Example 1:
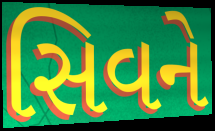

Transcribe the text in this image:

સિવને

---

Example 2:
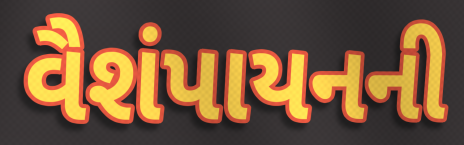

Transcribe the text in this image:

વૈશંપાયનની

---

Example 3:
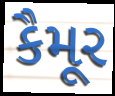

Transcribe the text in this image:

કૈમૂર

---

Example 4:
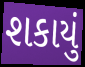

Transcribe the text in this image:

શકાયું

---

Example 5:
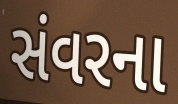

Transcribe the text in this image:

સંવરના